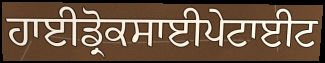
ਹਾਈਡ੍ਰੋਕਸਾਈਪੇਟਾਈਟ